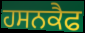
ਹਸਨਕੈਫ